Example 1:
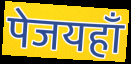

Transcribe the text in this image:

पेजयहाँ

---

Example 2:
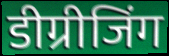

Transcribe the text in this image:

डीग्रीजिंग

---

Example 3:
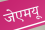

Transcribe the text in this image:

जेएमयू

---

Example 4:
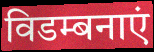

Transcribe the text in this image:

विडम्बनाएं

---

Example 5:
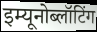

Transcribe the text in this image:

इम्यूनोब्लॉटिंग